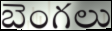
బెంగలు